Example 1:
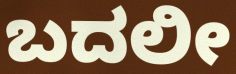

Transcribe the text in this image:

ಬದಲೀ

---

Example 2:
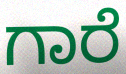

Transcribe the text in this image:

ಗಾರೆ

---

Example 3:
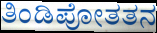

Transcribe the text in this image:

ತಿಂಡಿಪೋತತನ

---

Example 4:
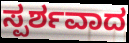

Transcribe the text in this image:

ಸ್ಪರ್ಶವಾದ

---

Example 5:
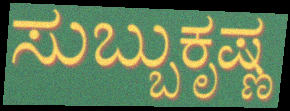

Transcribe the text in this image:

ಸುಬ್ಬುಕೃಷ್ಣ